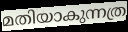
മതിയാകുന്നത്ര